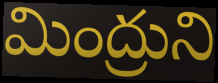
మింద్రుని